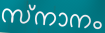
സ്‌നാനം